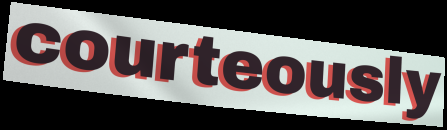
courteously